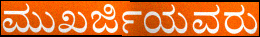
ಮುಖರ್ಜಿಯವರು